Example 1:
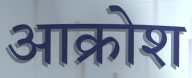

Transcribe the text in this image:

आक्रोश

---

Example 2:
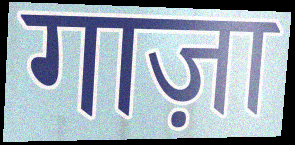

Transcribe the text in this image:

गाज़ा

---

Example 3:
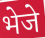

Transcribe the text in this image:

भेजे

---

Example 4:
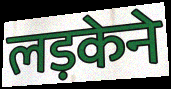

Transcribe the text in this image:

लड़केने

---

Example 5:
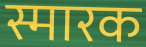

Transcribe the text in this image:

स्मारक